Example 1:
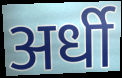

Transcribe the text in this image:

अर्धी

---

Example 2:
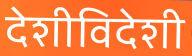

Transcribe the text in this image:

देशीविदेशी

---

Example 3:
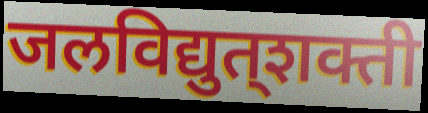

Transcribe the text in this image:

जलविद्युत्‌शक्ती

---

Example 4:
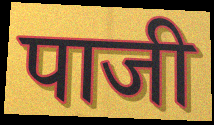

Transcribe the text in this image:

पाजी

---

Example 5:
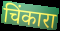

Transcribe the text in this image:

चिंकारा